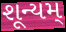
શૂન્યમ્